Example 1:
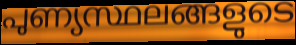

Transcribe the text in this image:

പുണ്യസ്ഥലങ്ങളുടെ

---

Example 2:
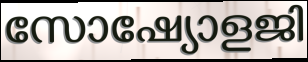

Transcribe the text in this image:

സോഷ്യോളജി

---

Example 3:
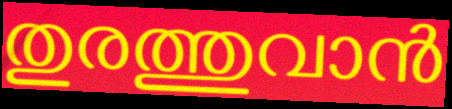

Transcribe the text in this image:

തുരത്തുവാൻ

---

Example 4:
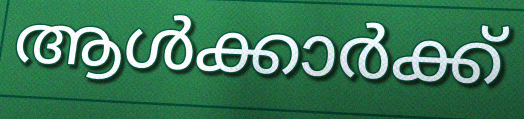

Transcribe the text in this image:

ആൾക്കാർക്ക്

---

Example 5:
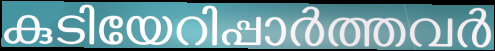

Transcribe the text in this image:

കുടിയേറിപ്പാർത്തവർ